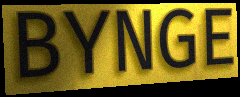
BYNGE